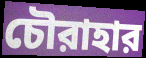
চৌরাহার